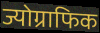
ज्योग्राफिक